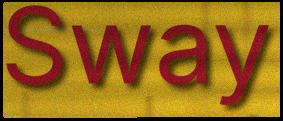
Sway